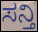
ಸನ್ತಿ